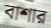
বাশার